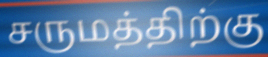
சருமத்திற்கு